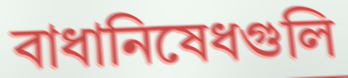
বাধানিষেধগুলি